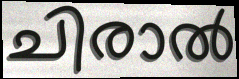
ചിരാൽ